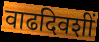
वाढदिवशीं